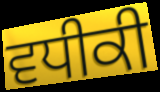
ਵਧੀਕੀ